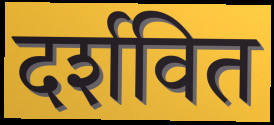
दर्शवित